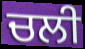
ਚਲੀ